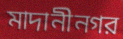
মাদানীনগর